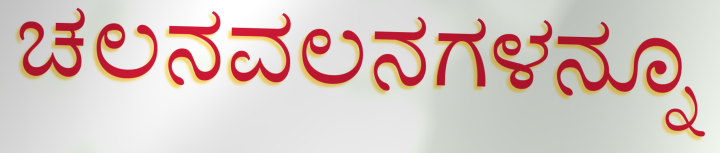
ಚಲನವಲನಗಳನ್ನೂ